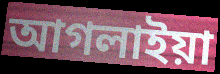
আগলাইয়া